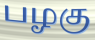
பழகு